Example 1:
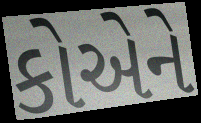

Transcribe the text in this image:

કોએને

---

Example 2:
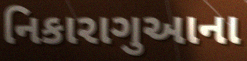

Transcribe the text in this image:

નિકારાગુઆના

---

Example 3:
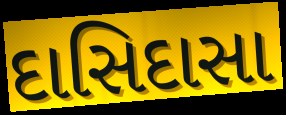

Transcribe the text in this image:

દાસિદાસા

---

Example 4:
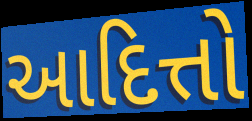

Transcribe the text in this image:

આદિત્તો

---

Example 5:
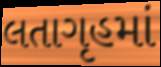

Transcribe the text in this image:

લતાગૃહમાં